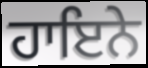
ਹਾਇਨੇ